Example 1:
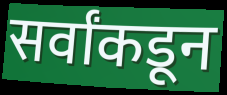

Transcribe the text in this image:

सर्वांकडून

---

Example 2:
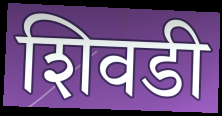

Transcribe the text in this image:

शिवडी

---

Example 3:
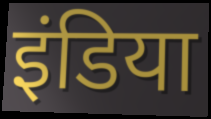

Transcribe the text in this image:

इंडिया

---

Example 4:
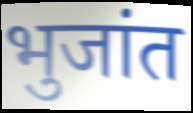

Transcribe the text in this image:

भुजांत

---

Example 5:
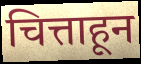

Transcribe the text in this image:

चित्ताहून